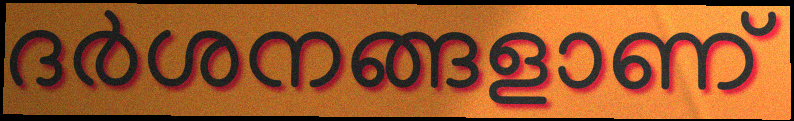
ദർശനങ്ങളാണ്